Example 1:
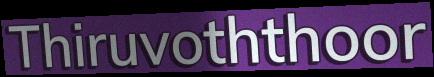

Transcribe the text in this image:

Thiruvoththoor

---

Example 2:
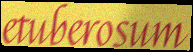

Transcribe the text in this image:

etuberosum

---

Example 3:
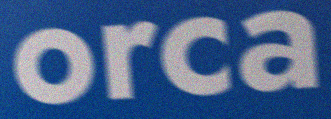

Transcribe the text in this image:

orca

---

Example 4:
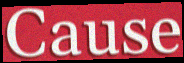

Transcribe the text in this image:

Cause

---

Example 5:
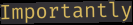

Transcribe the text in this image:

Importantly